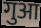
गुआ